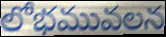
లోభమువలన